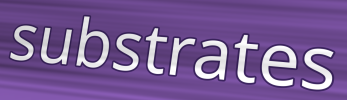
substrates